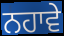
ਨਹਾਵੇ